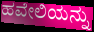
ಹವೇಲಿಯನ್ನು